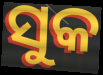
ସୁକ